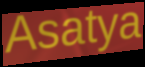
Asatya